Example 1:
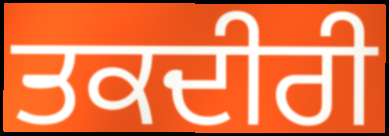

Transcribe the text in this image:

ਤਕਦੀਰੀ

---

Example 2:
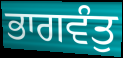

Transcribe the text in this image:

ਭਾਗਵੰਤੁ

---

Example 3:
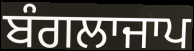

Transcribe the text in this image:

ਬੰਗਲਾਜਾਪ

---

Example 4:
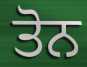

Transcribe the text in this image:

ਤੋਨ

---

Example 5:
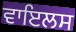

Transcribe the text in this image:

ਵਾਇਲਸ